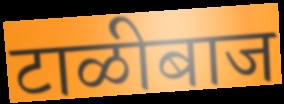
टाळीबाज